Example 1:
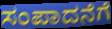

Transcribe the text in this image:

ಸಂಪಾದನೆಗೆ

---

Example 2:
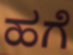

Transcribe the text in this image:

ಹಗೆ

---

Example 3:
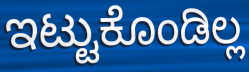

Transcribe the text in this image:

ಇಟ್ಟುಕೊಂಡಿಲ್ಲ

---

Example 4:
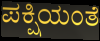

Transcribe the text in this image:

ಪಕ್ಷಿಯಂತೆ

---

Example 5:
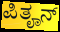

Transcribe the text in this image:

ಪಿತೄನ್